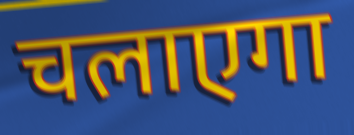
चलाएगा